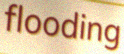
flooding